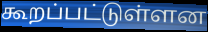
கூறப்பட்டுள்ளன